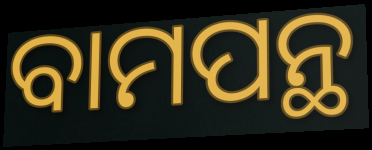
ବାମପନ୍ଥ